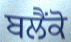
ਬਲੈਂਕੋ